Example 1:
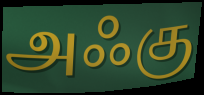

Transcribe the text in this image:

அஃகு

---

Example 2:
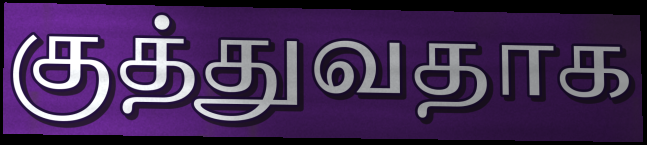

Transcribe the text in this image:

குத்துவதாக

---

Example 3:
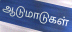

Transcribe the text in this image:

ஆடுமாடுகள்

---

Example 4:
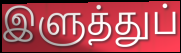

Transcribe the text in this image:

இளுத்துப்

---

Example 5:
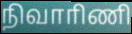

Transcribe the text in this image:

நிவாரிணி